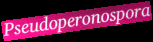
Pseudoperonospora